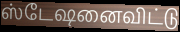
ஸ்டேஷனைவிட்டு